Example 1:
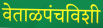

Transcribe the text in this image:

वेताळपंचविशी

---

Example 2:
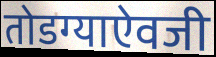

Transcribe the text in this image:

तोडग्याऐवजी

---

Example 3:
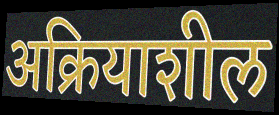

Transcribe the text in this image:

अक्रियाशील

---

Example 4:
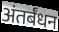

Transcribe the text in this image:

अंतर्बंधन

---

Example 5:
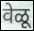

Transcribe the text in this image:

वेळू